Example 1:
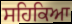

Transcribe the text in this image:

ਸਹਿਕਿਆ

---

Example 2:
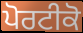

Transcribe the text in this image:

ਪੋਰਟੀਕੋ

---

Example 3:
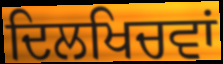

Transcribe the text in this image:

ਦਿਲਖਿਚਵਾਂ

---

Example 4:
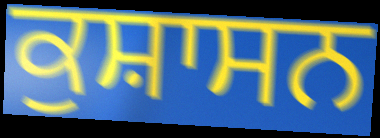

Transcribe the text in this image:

ਕੁਸ਼ਾਸਨ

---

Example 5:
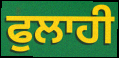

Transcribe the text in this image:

ਫੁਲਾਹੀ